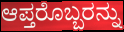
ಆಪ್ತರೊಬ್ಬರನ್ನು